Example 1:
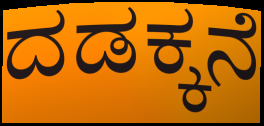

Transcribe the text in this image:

ದಡಕ್ಕನೆ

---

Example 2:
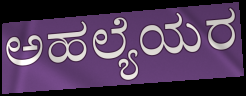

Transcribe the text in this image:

ಅಹಲ್ಯೆಯರ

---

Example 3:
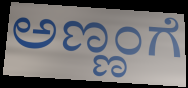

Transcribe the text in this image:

ಅಣ್ಣಂಗೆ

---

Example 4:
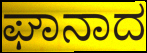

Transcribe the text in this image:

ಘಾನಾದ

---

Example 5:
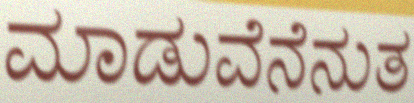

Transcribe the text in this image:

ಮಾಡುವೆನೆನುತ